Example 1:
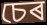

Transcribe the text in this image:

চেৰ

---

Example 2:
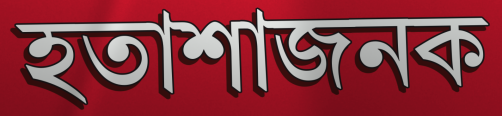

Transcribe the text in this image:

হতাশাজনক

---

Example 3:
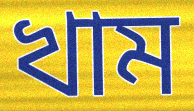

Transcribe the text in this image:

খাম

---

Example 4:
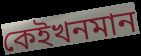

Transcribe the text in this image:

কেইখনমান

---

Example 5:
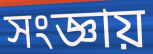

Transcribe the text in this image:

সংজ্ঞায়